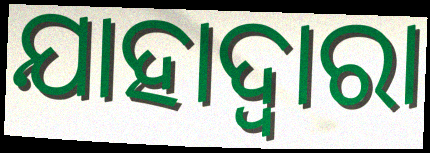
ଯାହାଦ୍ୱାରା